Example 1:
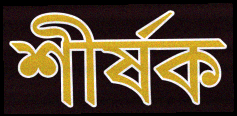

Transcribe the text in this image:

শীৰ্ষক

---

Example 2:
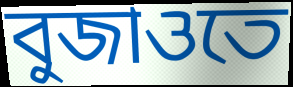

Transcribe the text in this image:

বুজাওতে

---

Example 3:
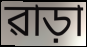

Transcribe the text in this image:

ৱাড়া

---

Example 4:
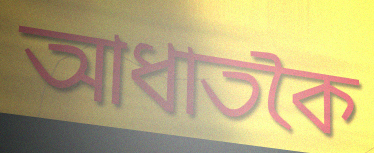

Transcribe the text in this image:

আধাতকৈ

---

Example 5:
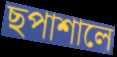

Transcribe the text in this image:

ছপাশালে